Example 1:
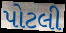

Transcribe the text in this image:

પોટલી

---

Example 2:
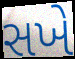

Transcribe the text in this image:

સખે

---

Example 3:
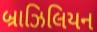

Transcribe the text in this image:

બ્રાઝિલિયન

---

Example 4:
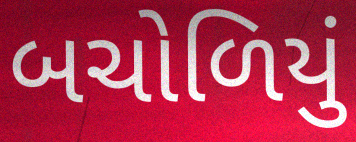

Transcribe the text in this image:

બચોળિયું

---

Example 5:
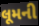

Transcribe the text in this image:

લૂમની